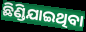
ଛିଣ୍ଡିଯାଇଥିବା